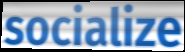
socialize